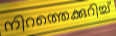
നിറത്തെക്കുറിച്ച്